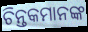
ଚିନ୍ତକମାନଙ୍କ